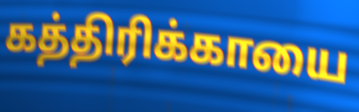
கத்திரிக்காயை